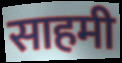
साहमी